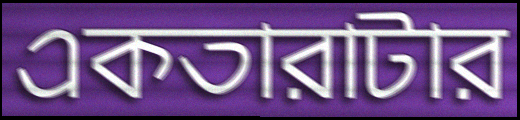
একতারাটার